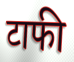
टाफी